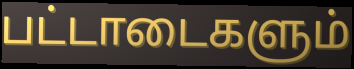
பட்டாடைகளும்